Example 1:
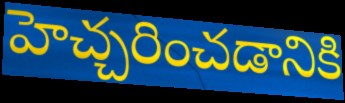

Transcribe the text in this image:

హెచ్చరించడానికి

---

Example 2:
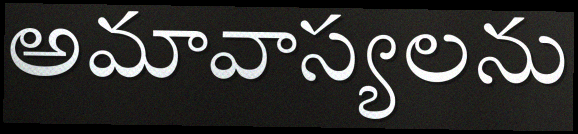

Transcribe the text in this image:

అమావాస్యలను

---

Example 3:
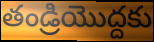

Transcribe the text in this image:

తండ్రియొద్దకు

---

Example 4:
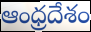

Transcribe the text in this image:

ఆంధ్రదేశం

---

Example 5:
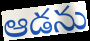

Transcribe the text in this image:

ఆడను